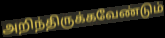
அறிந்திருக்கவேண்டும்